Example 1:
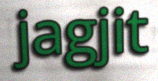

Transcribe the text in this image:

jagjit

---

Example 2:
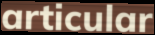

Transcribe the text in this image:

articular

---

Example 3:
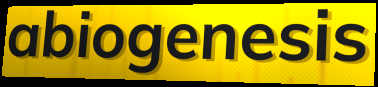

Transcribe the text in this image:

abiogenesis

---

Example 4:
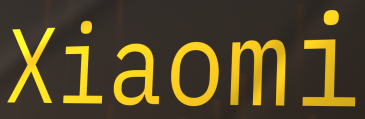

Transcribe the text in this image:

Xiaomi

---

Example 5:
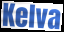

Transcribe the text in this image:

Kelva